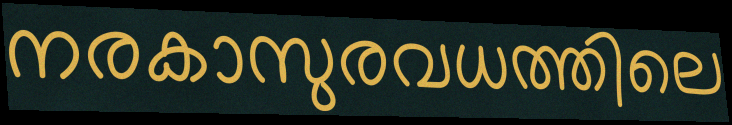
നരകാസുരവധത്തിലെ